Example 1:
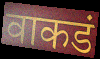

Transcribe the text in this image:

वाकडं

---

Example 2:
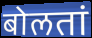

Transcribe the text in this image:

बोलतां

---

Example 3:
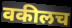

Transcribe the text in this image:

वकीलच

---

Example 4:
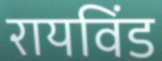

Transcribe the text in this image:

रायविंड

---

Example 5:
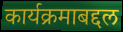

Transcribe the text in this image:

कार्यक्रमाबद्दल